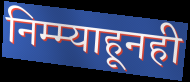
निम्म्याहूनही